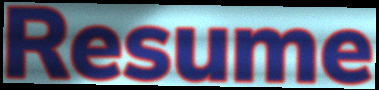
Resume